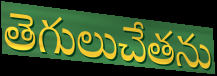
తెగులుచేతను